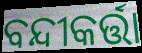
ବନ୍ଦୀକର୍ତ୍ତା